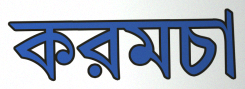
করমচা